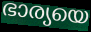
ഭാര്യയെ